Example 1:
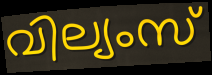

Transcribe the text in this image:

വില്യംസ്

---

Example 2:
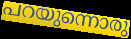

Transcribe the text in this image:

പറയുന്നൊരു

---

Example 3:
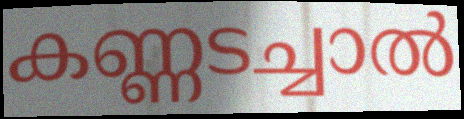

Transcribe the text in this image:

കണ്ണടച്ചാൽ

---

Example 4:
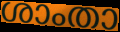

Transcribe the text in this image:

ശാംതാ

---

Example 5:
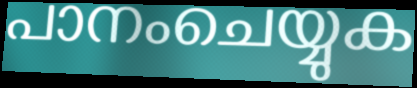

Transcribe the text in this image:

പാനംചെയ്യുക